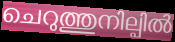
ചെറുത്തുനില്പിൽ